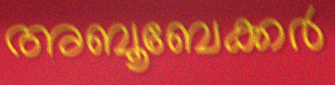
അബൂബേക്കർ